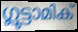
ഗ്ലുട്ടാമിക്